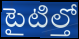
టైటిల్తో